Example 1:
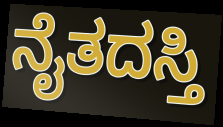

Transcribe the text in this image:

ನೈತದಸ್ತಿ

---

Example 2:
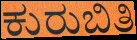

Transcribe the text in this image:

ಕುರುಬಿತಿ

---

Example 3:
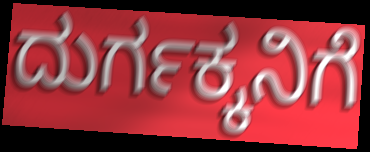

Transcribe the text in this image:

ದುರ್ಗಕ್ಕನಿಗೆ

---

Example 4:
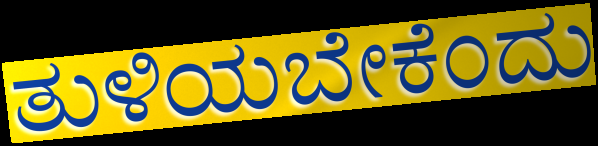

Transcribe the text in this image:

ತುಳಿಯಬೇಕೆಂದು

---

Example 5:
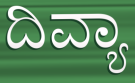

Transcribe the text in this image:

ದಿವ್ಯಾ